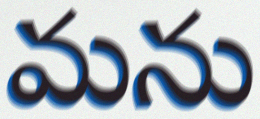
మను